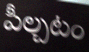
పీల్చటం